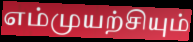
எம்முயற்சியும்